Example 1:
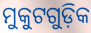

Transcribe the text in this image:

ମୁକୁଟଗୁଡ଼ିକ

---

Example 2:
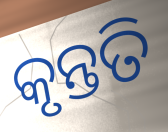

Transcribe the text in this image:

କୃନ୍ତତି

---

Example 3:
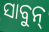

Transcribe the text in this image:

ସାବୁନ୍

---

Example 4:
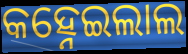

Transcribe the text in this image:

କହ୍ନେଇଲାଲ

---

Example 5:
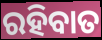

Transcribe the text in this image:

ରହିବାତ